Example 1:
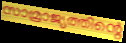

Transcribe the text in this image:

സാമ്രാജ്യത്തിന്റെ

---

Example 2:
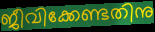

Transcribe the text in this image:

ജീവിക്കേണ്ടതിനു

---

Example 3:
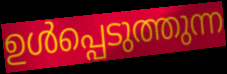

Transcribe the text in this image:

ഉൾപ്പെടുത്തുന്ന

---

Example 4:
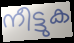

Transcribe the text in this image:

നീട്ടുക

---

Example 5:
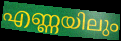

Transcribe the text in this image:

എണ്ണയിലും